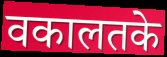
वकालतके